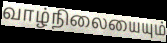
வாழ்நிலையையும்